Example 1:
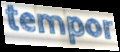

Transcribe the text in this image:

tempor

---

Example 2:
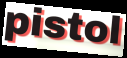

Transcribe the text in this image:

pistol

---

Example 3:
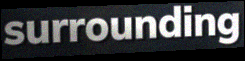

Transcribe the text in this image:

surrounding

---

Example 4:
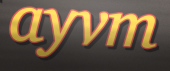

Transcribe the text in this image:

ayvm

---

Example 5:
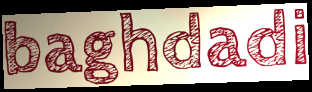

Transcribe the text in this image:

baghdadi